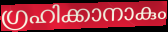
ഗ്രഹിക്കാനാകും